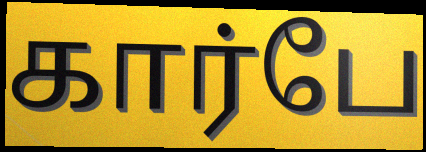
கார்பே